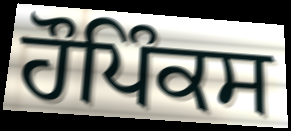
ਹੌਪਿੰਕਸ